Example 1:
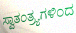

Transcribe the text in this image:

ಸ್ವಾತಂತ್ರ್ಯಗಳಿಂದ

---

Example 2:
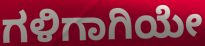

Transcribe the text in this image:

ಗಳಿಗಾಗಿಯೇ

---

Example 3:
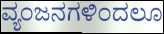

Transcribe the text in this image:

ವ್ಯಂಜನಗಳಿಂದಲೂ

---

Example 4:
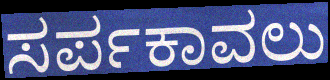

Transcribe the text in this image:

ಸರ್ಪಕಾವಲು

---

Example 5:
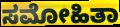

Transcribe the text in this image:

ಸಮೋಹಿತಾ